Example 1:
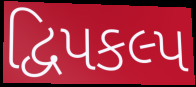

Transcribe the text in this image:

દ્વિપકલ્પ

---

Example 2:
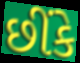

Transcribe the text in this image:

છીંકે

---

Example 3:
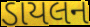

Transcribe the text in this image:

ડાયલન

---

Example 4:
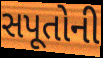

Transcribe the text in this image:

સપૂતોની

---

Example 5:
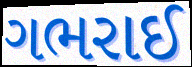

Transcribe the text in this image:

ગભરાઈ